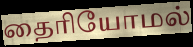
தைரியோமல்